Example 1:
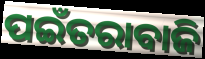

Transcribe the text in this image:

ପଇଁତରାବାଜି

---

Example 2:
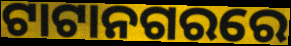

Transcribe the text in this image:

ଟାଟାନଗରରେ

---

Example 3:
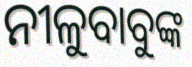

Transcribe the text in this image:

ନୀଳୁବାବୁଙ୍କ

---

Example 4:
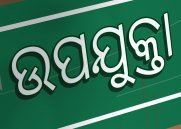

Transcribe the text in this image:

ଉପଯୁକ୍ତା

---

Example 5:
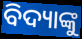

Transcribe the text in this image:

ବିଦ୍ୟାଙ୍କୁ